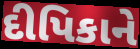
દીપિકાને